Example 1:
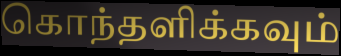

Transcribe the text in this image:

கொந்தளிக்கவும்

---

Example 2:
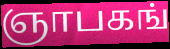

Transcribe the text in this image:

ஞாபகங்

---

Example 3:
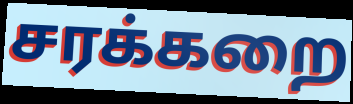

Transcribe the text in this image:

சரக்கறை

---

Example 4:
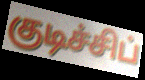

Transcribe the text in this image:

குடிச்சிப்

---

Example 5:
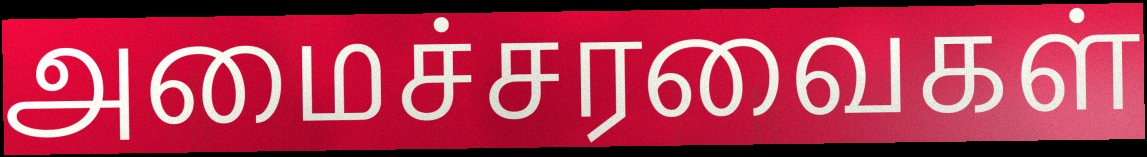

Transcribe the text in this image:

அமைச்சரவைகள்